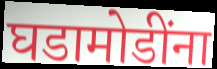
घडामोडींना